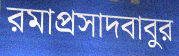
রমাপ্রসাদবাবুর